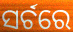
ସର୍ଚରେ